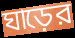
ঘাড়ের